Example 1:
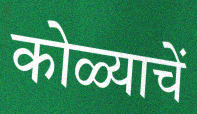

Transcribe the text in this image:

कोळ्याचें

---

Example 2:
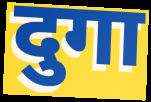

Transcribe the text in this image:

दुगा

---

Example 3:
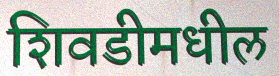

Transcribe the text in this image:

शिवडीमधील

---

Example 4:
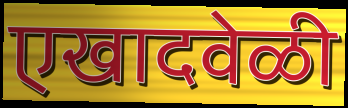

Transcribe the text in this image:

एखादवेळी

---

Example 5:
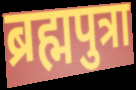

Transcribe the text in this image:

ब्रह्मपुत्रा